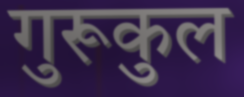
गुरूकुल